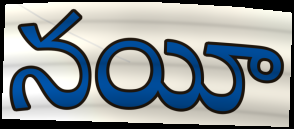
నయీ